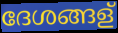
ദേശങ്ങള്